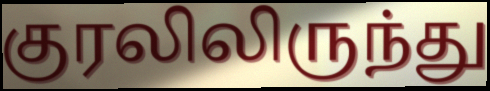
குரலிலிருந்து